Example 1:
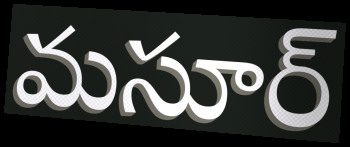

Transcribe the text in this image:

మసూర్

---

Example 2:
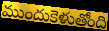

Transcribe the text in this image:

ముందుకెళుతోంది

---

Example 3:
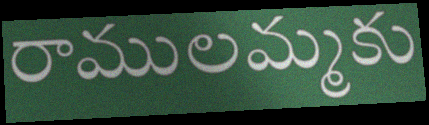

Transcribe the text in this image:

రాములమ్మకు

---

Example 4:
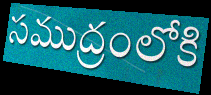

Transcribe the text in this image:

సముద్రంలోకి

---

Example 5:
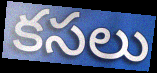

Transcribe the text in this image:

కసలు